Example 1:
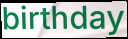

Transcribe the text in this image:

birthday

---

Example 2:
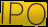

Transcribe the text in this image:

IPO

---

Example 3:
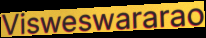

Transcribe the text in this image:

Visweswararao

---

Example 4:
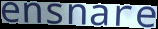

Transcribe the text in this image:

ensnare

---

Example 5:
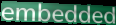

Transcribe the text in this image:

embedded